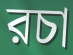
রচা